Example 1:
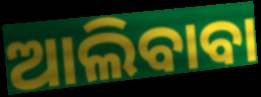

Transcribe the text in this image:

ଆଲିବାବା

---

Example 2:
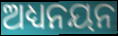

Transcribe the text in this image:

ଅଧ୍ୟନୟନ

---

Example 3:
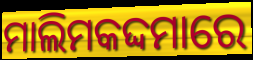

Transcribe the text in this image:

ମାଲିମକଦ୍ଦମାରେ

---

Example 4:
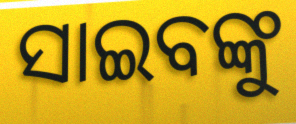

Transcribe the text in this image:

ସାଇବଙ୍କୁ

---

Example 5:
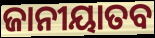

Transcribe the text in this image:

ଜାନୀୟାତବ